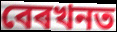
বেৰখনত